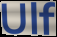
Ulf